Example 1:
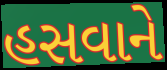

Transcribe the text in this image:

હસવાને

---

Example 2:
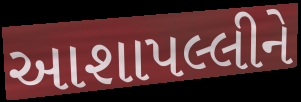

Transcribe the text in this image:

આશાપલ્લીને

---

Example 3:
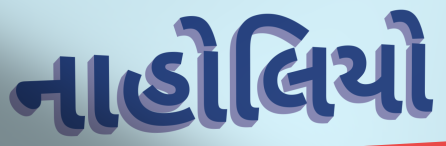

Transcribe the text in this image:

નાહોલિયો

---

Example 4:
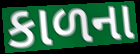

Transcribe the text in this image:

કાળના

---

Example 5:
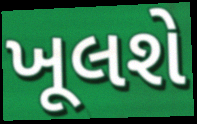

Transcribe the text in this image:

ખૂલશે